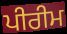
ਪੀਰੀਮ